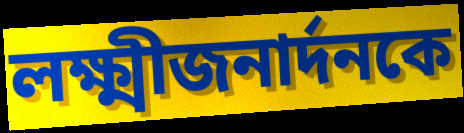
লক্ষ্মীজনার্দনকে